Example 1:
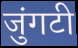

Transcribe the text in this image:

जुंगटी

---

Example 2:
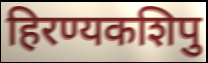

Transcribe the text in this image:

हिरण्यकशिपु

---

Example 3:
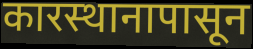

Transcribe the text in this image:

कारस्थानापासून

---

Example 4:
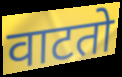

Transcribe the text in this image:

वाटतो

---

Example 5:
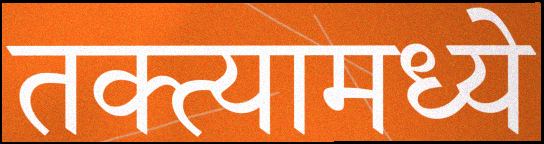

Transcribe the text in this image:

तक्त्यामध्ये